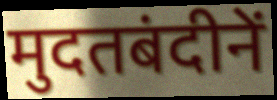
मुदतबंदीनें